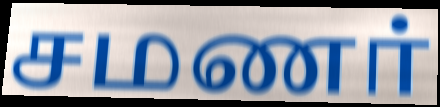
சமணர்